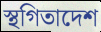
স্থগিতাদেশ